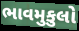
ભાવમુકુલો